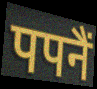
पपनैं